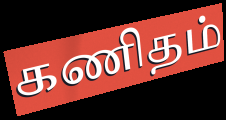
கணிதம்